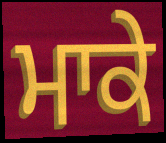
ਮਾਕੇ